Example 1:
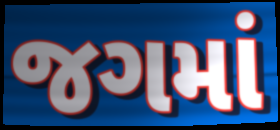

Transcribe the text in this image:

જગમાં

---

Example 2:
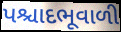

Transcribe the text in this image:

પશ્ચાદભૂવાળી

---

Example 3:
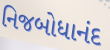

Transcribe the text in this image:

નિજબોધાનંદ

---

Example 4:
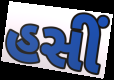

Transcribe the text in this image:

હસીં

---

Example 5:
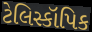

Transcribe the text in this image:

ટેલિસ્કૉપિક